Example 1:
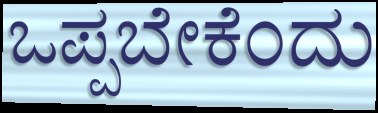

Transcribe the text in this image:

ಒಪ್ಪಬೇಕೆಂದು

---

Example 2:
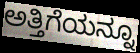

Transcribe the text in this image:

ಅತ್ತಿಗೆಯನ್ನೂ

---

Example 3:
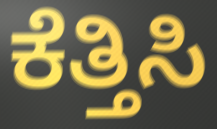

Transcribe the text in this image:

ಕೆತ್ತಿಸಿ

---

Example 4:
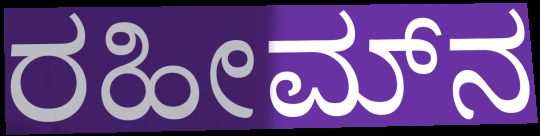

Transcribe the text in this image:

ರಹೀಮ್‌ನ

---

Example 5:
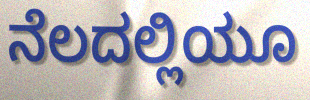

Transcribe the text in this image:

ನೆಲದಲ್ಲಿಯೂ